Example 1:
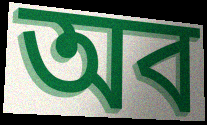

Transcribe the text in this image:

অব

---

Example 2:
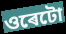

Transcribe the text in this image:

ওৰেটো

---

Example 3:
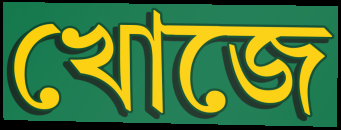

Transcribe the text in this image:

খোজে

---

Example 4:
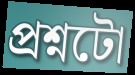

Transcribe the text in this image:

প্ৰশ্নটো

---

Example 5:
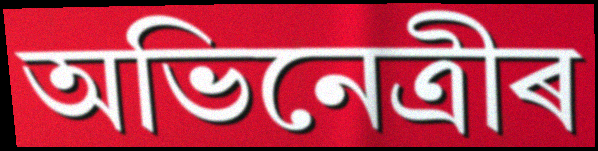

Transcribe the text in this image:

অভিনেত্ৰীৰ